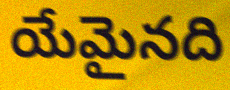
యేమైనది